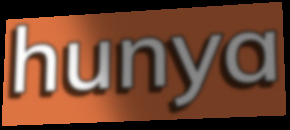
hunya